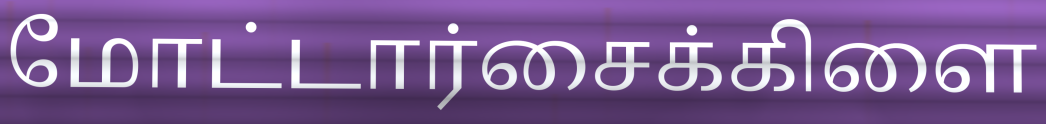
மோட்டார்சைக்கிளை